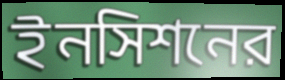
ইনসিশনের